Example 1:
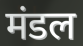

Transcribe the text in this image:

मंडल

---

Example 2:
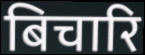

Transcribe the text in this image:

बिचारि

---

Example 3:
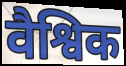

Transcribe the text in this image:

वैश्विक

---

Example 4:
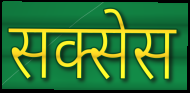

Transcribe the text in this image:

सक्सेस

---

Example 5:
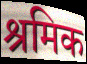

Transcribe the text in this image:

श्रमिक